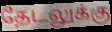
தேடலுக்கு